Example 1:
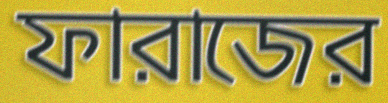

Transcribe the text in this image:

ফারাজের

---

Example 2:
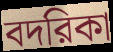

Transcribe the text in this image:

বদরিকা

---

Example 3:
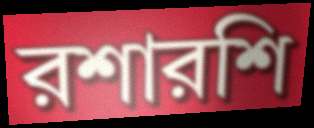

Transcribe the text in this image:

রশারশি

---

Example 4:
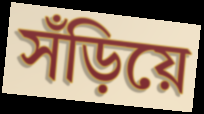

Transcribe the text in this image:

সঁড়িয়ে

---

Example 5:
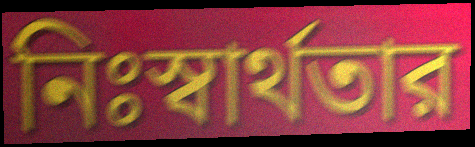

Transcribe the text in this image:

নিঃস্বার্থতার